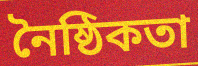
নৈষ্ঠিকতা